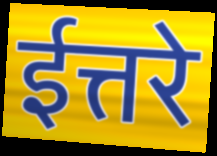
ईत्तरे